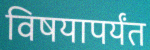
विषयापर्यंत